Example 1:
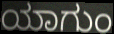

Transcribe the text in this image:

ಯಾಗುಂ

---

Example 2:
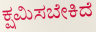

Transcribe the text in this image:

ಕ್ಷಮಿಸಬೇಕಿದೆ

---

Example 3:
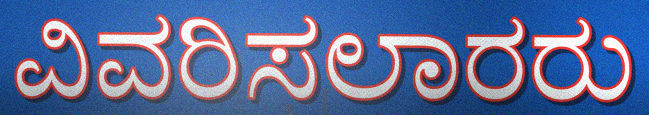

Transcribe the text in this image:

ವಿವರಿಸಲಾರರು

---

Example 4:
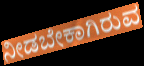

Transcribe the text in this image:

ನೀಡಬೇಕಾಗಿರುವ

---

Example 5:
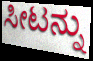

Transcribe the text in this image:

ಸೀಟನ್ನು